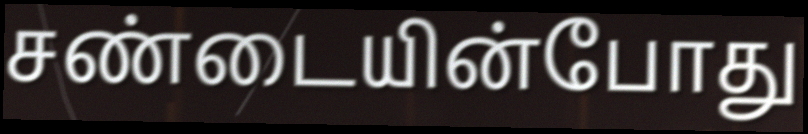
சண்டையின்போது